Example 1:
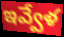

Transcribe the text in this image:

ఇవ్వేళ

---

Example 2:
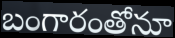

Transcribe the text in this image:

బంగారంతోనూ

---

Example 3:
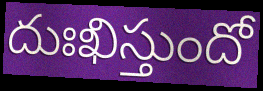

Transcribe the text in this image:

దుఃఖిస్తుందో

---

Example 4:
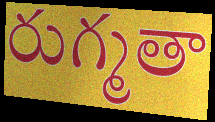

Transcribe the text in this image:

రుగ్మతా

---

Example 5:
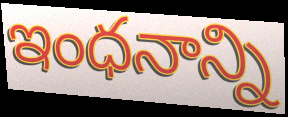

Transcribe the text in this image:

ఇంధనాన్ని